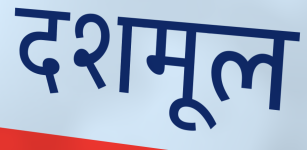
दशमूल